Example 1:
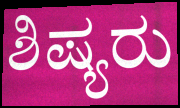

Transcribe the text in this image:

ಶಿಷ್ಯರು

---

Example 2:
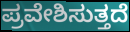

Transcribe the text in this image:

ಪ್ರವೇಶಿಸುತ್ತದೆ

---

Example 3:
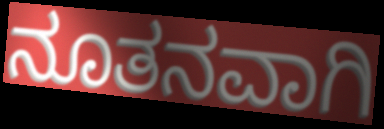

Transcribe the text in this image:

ನೂತನವಾಗಿ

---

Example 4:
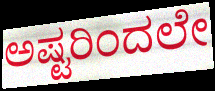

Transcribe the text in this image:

ಅಷ್ಟರಿಂದಲೇ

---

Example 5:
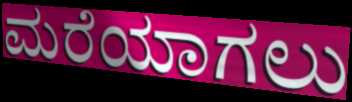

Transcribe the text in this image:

ಮರೆಯಾಗಲು